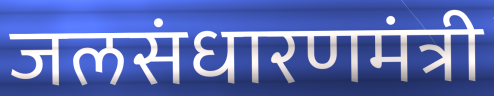
जलसंधारणमंत्री